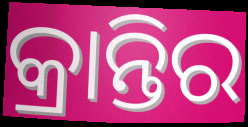
କ୍ରାନ୍ତିର